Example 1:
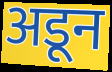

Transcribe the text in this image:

अडून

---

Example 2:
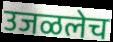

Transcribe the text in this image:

उजळलेच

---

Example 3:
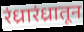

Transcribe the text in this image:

रंध्रारंध्रातून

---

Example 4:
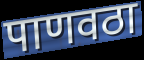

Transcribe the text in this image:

पाणवठा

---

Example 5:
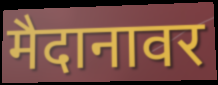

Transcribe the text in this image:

मैदानावर